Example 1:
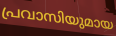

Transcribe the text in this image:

പ്രവാസിയുമായ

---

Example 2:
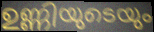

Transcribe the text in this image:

ഉണ്ണിയുടെയും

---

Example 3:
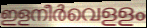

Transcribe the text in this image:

ഇളനീർവെളളം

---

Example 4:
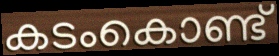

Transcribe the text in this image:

കടംകൊണ്ട്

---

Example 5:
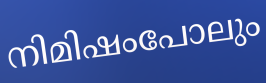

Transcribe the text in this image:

നിമിഷംപോലും